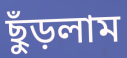
ছুঁড়লাম